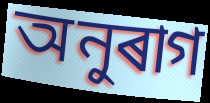
অনুৰাগ